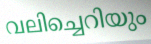
വലിച്ചെറിയും